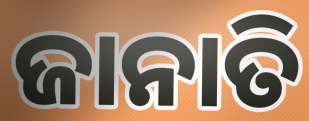
ଜାନାତି